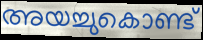
അയച്ചുകൊണ്ട്